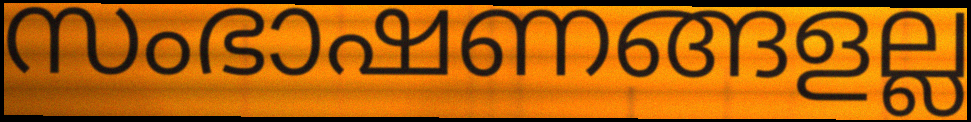
സംഭാഷണങ്ങളല്ല